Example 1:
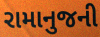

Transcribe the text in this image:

રામાનુજની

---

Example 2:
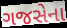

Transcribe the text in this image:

ગજસેના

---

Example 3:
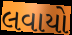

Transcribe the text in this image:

લવાયો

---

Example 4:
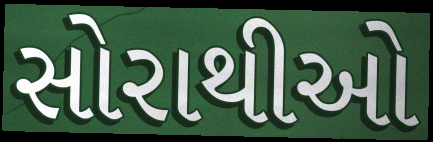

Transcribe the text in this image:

સોરાથીઓ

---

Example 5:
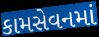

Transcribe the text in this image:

કામસેવનમાં